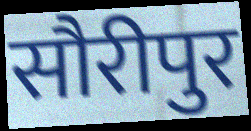
सौरीपुर